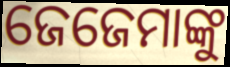
ଜେଜେମାଙ୍କୁ